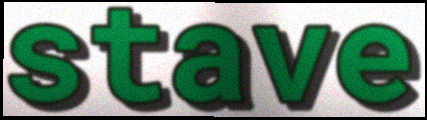
stave